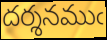
దర్శనముఁ